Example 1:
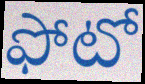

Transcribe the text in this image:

ఫోటో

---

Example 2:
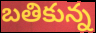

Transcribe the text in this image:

బతికున్న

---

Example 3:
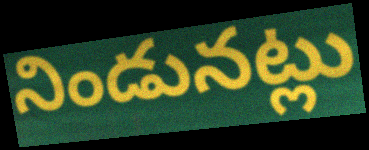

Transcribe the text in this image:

నిండునట్లు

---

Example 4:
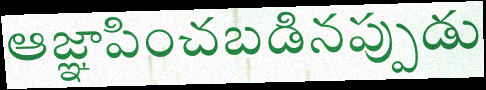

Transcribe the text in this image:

ఆజ్ఞాపించబడినప్పుడు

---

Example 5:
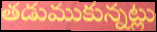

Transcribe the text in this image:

తడుముకున్నట్లు